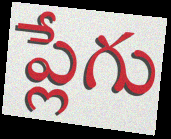
ప్లేగు